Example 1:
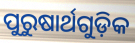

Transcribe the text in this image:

ପୁରୁଷାର୍ଥଗୁଡ଼ିକ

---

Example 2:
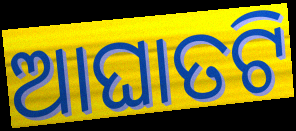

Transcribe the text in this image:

ଆଘାତଟି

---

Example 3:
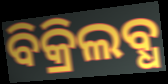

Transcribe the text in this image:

ବିକ୍ରିଲବ୍ଧ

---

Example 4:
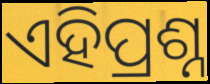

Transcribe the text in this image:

ଏହିପ୍ରଶ୍ନ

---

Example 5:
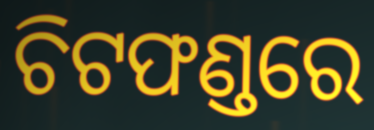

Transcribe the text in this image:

ଚିଟଫଣ୍ଡରେ